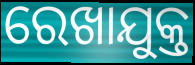
ରେଖାଯୁକ୍ତ